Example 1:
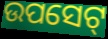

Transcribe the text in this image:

ଉପସେଟ୍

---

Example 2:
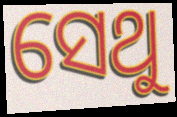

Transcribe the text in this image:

ସେଥୁ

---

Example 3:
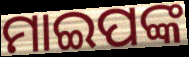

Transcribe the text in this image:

ମାଇପଙ୍କ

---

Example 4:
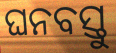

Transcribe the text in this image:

ଘନବସ୍ତୁ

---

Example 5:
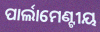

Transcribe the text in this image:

ପାର୍ଲାମେଣ୍ଟୀୟ